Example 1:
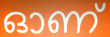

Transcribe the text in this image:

ഓണ്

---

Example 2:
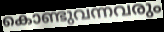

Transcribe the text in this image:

കൊണ്ടുവന്നവരും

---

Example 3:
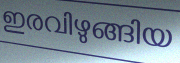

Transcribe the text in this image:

ഇരവിഴുങ്ങിയ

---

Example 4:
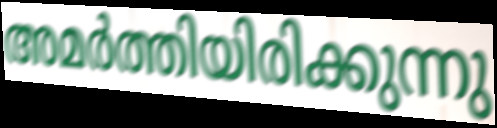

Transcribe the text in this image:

അമർത്തിയിരിക്കുന്നു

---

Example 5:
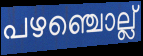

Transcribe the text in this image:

പഴഞ്ചൊല്ല്